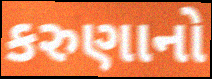
કરુણાનો